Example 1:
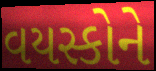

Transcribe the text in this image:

વયસ્કોને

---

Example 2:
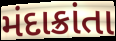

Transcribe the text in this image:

મંદાક્રાંતા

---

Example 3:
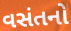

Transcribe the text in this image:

વસંતનો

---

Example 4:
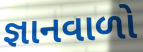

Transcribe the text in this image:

જ્ઞાનવાળો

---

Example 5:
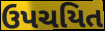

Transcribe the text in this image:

ઉપચયિત